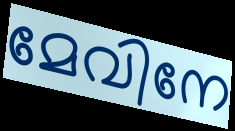
മേവിനേ